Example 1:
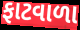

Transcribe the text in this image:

ફાટવાળા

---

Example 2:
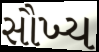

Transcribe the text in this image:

સૌખ્ય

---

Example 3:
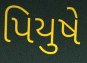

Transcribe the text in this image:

પિયુષે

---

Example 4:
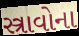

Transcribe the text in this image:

સ્ત્રાવોના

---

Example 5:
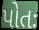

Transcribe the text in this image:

પોતઃ